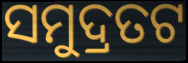
ସମୁଦ୍ରତଟ